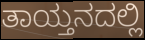
ತಾಯ್ತನದಲ್ಲಿ